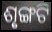
ଶୃଙ୍ଗଟି